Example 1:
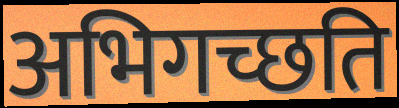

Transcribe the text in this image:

अभिगच्छति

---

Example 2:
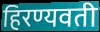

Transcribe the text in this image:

हिरण्यवती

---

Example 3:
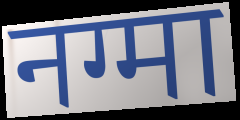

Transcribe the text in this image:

नग्मा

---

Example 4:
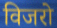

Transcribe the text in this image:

विजरो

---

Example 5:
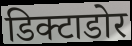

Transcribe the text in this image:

डिक्टाडोर